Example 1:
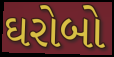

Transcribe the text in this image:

ઘરોબો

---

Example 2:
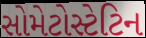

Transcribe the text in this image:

સોમેટોસ્ટેટિન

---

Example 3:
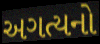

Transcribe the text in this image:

અગત્યનો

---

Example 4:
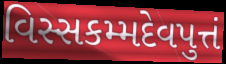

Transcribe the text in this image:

વિસ્સકમ્મદેવપુત્તં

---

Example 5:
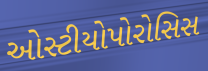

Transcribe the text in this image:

ઓસ્ટીયોપોરોસિસ